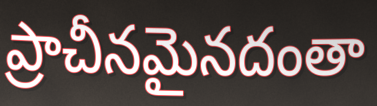
ప్రాచీనమైనదంతా